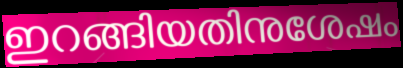
ഇറങ്ങിയതിനുശേഷം